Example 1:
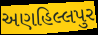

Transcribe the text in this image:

અણહિલ્લપુર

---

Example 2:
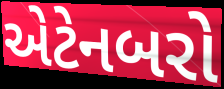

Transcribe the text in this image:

એટેનબરો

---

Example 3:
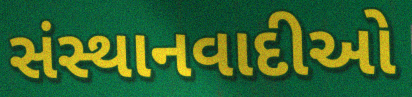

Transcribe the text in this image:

સંસ્થાનવાદીઓ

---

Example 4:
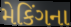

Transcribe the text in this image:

મેકિંગના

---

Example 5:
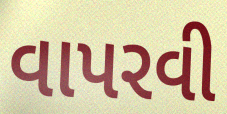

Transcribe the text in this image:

વાપરવી